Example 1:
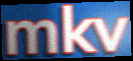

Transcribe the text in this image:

mkv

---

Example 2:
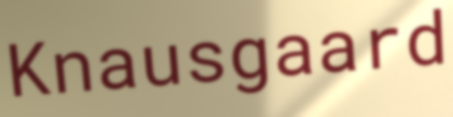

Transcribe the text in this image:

Knausgaard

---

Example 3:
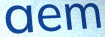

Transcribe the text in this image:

aem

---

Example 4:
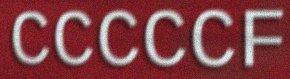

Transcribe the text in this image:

CCCCCF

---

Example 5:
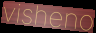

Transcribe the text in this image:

visheno